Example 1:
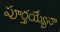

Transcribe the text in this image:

పూర్తయ్యేనా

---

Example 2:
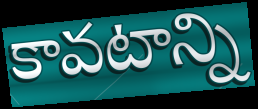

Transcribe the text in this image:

కావటాన్ని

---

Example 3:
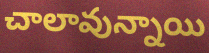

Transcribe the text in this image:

చాలావున్నాయి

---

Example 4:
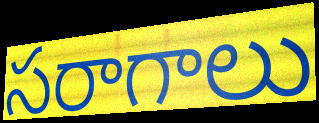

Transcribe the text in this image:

సరాగాలు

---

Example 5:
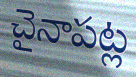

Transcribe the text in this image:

చైనాపట్ల